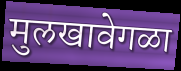
मुलखावेगळा